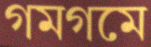
গমগমে